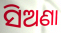
ସିଅଣା